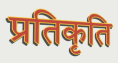
प्रतिकृति